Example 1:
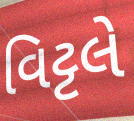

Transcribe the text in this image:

વિટ્ટલે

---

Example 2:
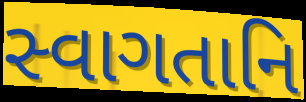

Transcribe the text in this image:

સ્વાગતાનિ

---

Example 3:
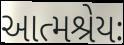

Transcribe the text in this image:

આત્મશ્રેયઃ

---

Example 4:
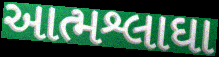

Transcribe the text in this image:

આત્મશ્લાઘા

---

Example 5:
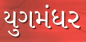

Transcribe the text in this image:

યુગમંધર